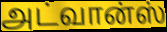
அட்வான்ஸ்